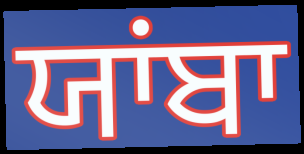
ਯਾਂਬਾ